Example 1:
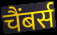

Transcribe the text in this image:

चैंबर्स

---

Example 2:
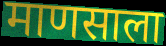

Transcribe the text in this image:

माणसाला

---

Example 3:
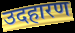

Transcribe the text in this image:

उदहारण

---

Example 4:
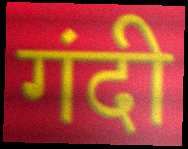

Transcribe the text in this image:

गंदी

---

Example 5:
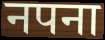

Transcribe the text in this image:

नपना